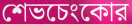
শেভচেংকোর